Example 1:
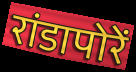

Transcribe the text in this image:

रांडापोरें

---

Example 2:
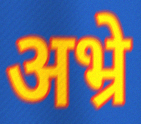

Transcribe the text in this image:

अभ्रे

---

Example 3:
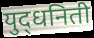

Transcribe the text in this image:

युद्धनिती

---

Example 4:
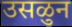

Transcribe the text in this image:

उसळुन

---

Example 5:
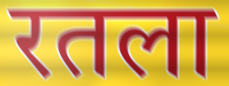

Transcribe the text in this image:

रतला